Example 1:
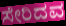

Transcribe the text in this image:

ಸೇರಿದವ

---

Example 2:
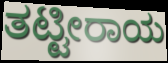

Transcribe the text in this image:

ತಟ್ಟೀರಾಯ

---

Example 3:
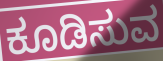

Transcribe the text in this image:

ಕೂಡಿಸುವ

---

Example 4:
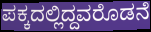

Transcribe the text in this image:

ಪಕ್ಕದಲ್ಲಿದ್ದವರೊಡನೆ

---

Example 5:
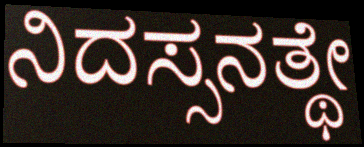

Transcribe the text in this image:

ನಿದಸ್ಸನತ್ಥೇ